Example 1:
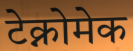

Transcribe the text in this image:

टेक्नोमेक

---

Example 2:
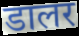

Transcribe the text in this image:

डालर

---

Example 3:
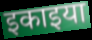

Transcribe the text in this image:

इकाइया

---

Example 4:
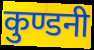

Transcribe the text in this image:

कुण्डनी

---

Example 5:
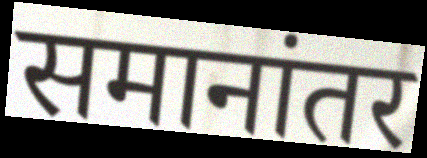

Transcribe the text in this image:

समानांतर